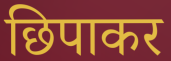
छिपाकर